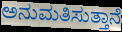
ಅನುಮತಿಸುತ್ತಾನೆ